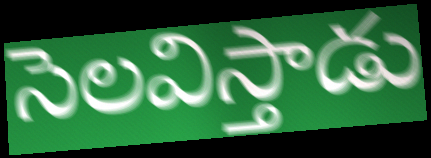
సెలవిస్తాడు